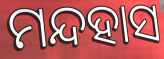
ମନ୍ଦହାସ